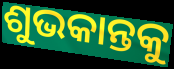
ଶୁଭକାନ୍ତକୁ